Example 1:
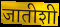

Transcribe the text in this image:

जातीशी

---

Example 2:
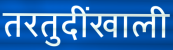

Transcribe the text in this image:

तरतुदींखाली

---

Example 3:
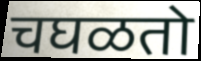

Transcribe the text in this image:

चघळतो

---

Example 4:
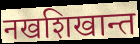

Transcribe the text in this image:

नखशिखान्त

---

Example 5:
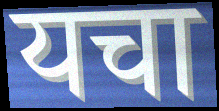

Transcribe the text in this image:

यचा